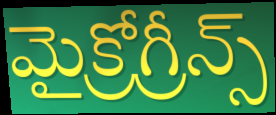
మైక్రోగ్రీన్స్